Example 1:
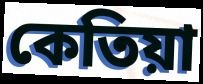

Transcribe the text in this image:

কেতিয়া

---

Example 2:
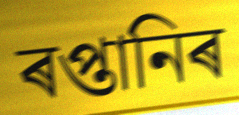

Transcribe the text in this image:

ৰপ্তানিৰ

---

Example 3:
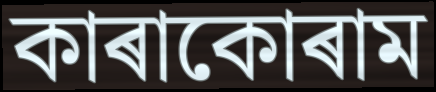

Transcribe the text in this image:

কাৰাকোৰাম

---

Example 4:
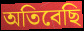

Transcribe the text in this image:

অতিবেছি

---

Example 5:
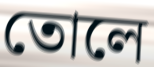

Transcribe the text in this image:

তোলে